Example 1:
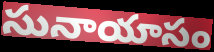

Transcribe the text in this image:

సునాయాసం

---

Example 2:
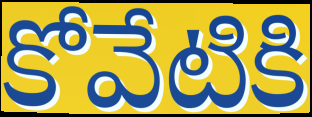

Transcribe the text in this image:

కోవేటికి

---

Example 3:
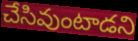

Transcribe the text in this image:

చేసివుంటాడని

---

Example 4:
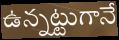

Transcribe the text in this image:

ఉన్నట్టుగానే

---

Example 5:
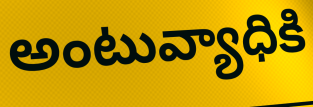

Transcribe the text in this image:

అంటువ్యాధికి